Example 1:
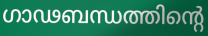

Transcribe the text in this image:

ഗാഢബന്ധത്തിന്റെ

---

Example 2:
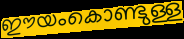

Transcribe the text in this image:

ഈയംകൊണ്ടുള്ള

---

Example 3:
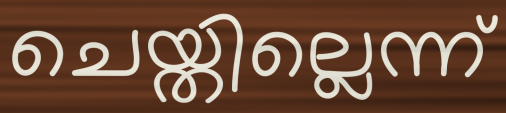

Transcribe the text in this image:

ചെയ്തില്ലെന്ന്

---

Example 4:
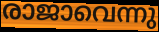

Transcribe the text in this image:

രാജാവെന്നു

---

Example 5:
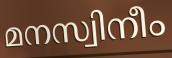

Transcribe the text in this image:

മനസ്വിനീം